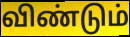
விண்டும்